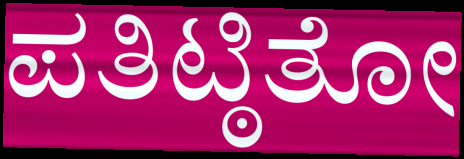
ಪತಿಟ್ಠಿತೋ